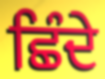
ਛਿੰਦੇ